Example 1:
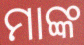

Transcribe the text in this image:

ମାଙ୍କ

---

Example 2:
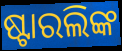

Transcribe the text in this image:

ଷ୍ଟାରଲିଙ୍କ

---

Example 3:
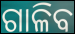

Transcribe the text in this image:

ଗାଳିବ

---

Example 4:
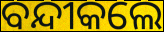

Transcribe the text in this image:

ବନ୍ଦୀକଲେ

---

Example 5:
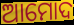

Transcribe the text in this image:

ଆମୋଦ